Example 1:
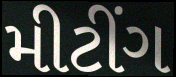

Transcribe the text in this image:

મીટીંગ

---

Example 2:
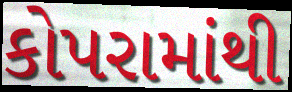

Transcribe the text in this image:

કોપરામાંથી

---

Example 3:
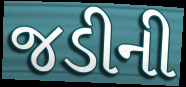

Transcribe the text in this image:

જડીની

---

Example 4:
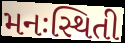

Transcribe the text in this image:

મનઃસ્થિતી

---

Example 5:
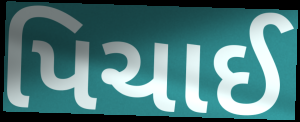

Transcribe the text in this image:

પિચાઈ